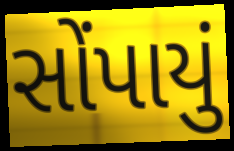
સોંપાયું